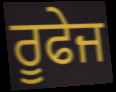
ਰੂਫੇਜ